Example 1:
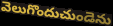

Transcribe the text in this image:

వెలుగొందుచుండెను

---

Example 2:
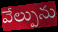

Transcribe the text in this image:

వేల్పును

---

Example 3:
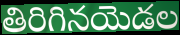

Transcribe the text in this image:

తిరిగినయెడల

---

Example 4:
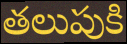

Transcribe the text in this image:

తలుపుకి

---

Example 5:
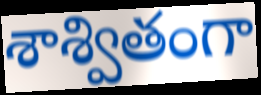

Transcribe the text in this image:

శాశ్వితంగా